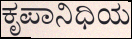
ಕೃಪಾನಿಧಿಯ